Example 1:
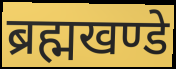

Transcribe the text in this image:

ब्रह्मखण्डे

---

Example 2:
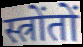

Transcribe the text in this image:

स्त्रोंतों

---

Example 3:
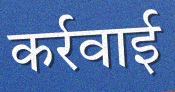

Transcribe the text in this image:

कर्रवाई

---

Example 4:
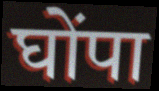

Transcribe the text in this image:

घोंपा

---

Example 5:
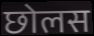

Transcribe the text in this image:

छोलस